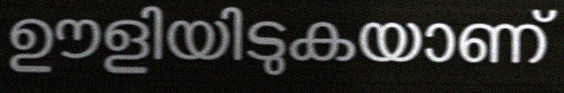
ഊളിയിടുകയാണ്